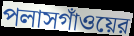
পলাসগাঁওয়ের